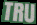
TRU